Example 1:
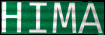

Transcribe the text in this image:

HIMA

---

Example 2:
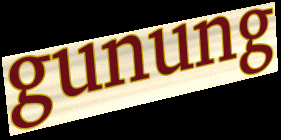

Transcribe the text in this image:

gunung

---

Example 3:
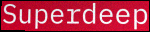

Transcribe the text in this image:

Superdeep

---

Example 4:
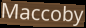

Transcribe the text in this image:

Maccoby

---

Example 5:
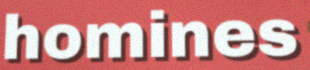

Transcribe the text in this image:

homines